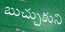
బుచ్చుకుని